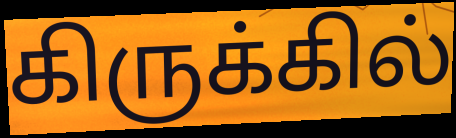
கிருக்கில்